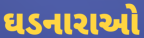
ઘડનારાઓ